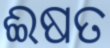
ଈଷତ